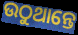
ଉଠୁଥାନ୍ତେ